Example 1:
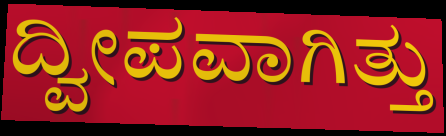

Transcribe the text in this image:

ದ್ವೀಪವಾಗಿತ್ತು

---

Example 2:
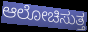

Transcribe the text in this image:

ಆಲೋಚಿಸುತ್ತ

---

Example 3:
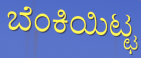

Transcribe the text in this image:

ಬೆಂಕಿಯಿಟ್ಟ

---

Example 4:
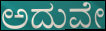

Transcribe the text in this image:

ಅದುವೇ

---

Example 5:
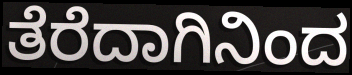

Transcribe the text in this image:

ತೆರೆದಾಗಿನಿಂದ